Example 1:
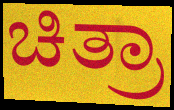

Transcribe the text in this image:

ಚಿತ್ರಾ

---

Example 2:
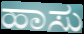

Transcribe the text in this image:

ಹಾಸು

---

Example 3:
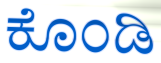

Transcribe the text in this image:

ಕೊಂಡಿ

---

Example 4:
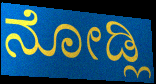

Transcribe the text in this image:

ನೋಡ್ಲಿ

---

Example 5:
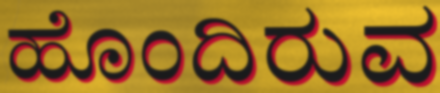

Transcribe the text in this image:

ಹೊಂದಿರುವ